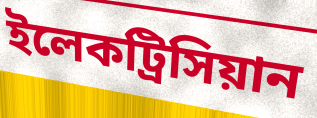
ইলেকট্রিসিয়ান